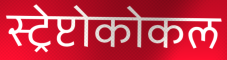
स्ट्रेप्टोकोकल